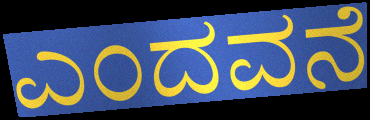
ಎಂದವನೆ